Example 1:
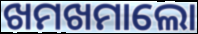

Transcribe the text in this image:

ଖମଖମାଲୋ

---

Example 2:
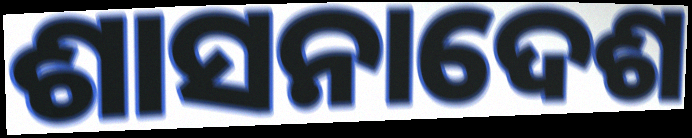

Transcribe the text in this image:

ଶାସନାଦେଶ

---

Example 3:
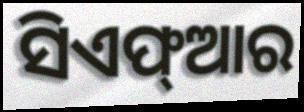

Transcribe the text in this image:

ସିଏଫ୍ଆର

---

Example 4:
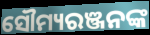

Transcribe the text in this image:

ସୌମ୍ୟରଞ୍ଜନଙ୍କ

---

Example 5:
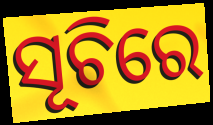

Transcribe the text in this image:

ସୂଚିରେ